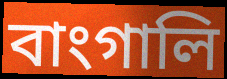
বাংগালি